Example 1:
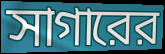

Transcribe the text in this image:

সাগারের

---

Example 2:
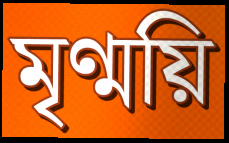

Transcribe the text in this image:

মৃণ্ময়ি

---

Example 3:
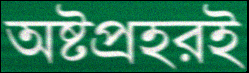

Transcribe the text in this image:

অষ্টপ্রহরই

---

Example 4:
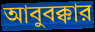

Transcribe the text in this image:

আবুবক্কার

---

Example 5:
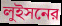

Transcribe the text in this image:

লুইসনের